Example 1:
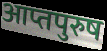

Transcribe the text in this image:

आप्तपुरुष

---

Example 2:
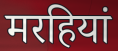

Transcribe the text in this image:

मरहियां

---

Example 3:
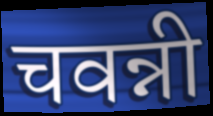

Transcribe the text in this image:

चवन्नी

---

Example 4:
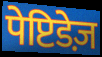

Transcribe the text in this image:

पेप्टिडेज़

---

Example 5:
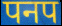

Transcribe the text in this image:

पनप